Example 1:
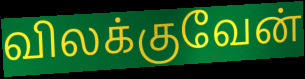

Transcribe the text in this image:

விலக்குவேன்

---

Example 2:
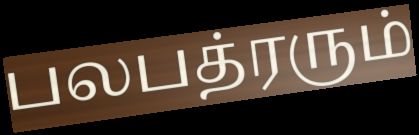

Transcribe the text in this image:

பலபத்ரரும்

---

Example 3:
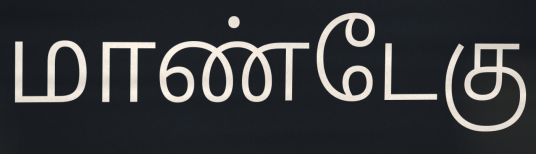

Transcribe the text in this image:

மாண்டேகு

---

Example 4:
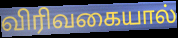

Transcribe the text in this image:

விரிவகையால்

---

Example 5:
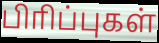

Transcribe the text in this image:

பிரிப்புகள்